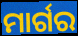
ମାର୍ଗର